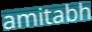
amitabh